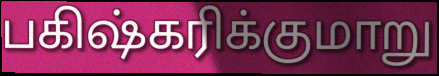
பகிஷ்கரிக்குமாறு